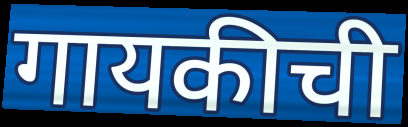
गायकीची